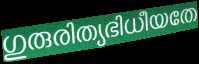
ഗുരുരിത്യഭിധീയതേ